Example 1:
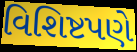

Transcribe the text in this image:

વિશિષ્ટપણે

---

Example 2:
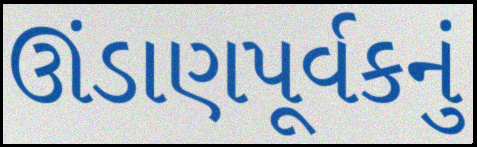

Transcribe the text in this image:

ઊંડાણપૂર્વકનું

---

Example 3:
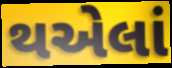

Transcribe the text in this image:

થએલાં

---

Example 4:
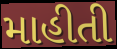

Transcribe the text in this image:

માહીતી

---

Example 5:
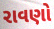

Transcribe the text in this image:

રાવણો